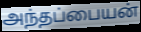
அந்தப்பையன்